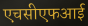
एचसीएफआई